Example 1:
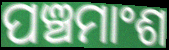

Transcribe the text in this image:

ପଞ୍ଚମାଂଶ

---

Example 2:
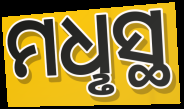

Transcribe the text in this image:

ମଧୢସ୍ଥ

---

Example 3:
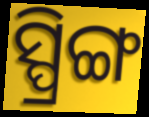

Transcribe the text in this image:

ସ୍ପ୍ରିଙ୍ଗ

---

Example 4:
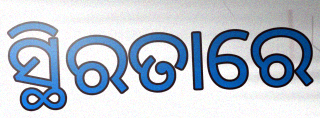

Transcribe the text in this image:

ସ୍ଥିରତାରେ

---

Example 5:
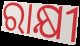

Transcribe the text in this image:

ରାକ୍ଷୀ